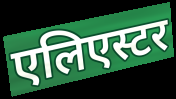
एलिएस्टर